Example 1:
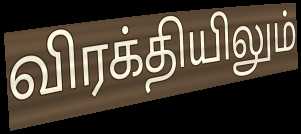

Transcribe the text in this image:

விரக்தியிலும்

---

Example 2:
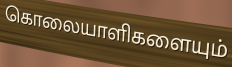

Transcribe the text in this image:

கொலையாளிகளையும்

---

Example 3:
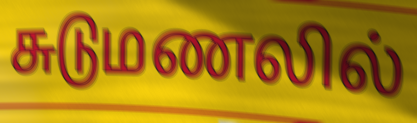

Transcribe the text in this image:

சுடுமணலில்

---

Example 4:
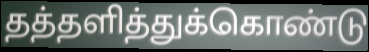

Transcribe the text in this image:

தத்தளித்துக்கொண்டு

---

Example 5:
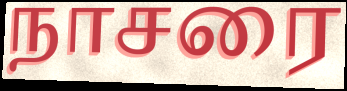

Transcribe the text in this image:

நாசரை